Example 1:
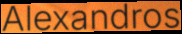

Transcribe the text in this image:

Alexandros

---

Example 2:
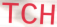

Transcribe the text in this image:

TCH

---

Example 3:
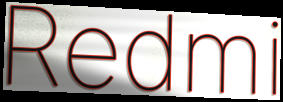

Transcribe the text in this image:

Redmi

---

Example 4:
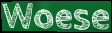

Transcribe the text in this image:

Woese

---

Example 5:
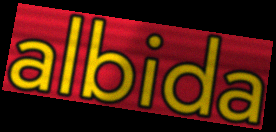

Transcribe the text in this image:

albida